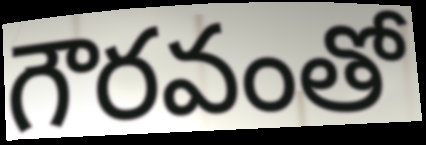
గౌరవంతో